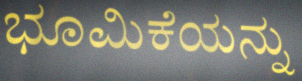
ಭೂಮಿಕೆಯನ್ನು